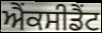
ਐਂਕਸੀਡੈਂਟ